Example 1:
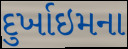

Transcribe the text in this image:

દુર્ખાઇમના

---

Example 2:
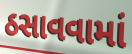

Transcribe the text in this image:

ઠસાવવામાં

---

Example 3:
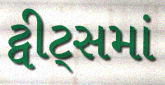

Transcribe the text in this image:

ટ્વીટ્સમાં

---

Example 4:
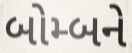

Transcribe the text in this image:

બોમ્બને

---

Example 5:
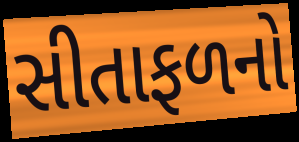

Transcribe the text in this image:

સીતાફળનો